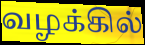
வழக்கில்